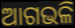
ଆଗଭଳି